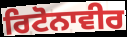
ਰਿਟੋਨਾਵੀਰ